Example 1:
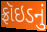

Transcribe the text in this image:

ફ્રૉઇડનું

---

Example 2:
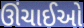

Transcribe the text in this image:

ઊંચાઈઓ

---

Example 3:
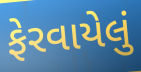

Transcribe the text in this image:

ફેરવાયેલું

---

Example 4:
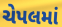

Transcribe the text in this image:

ચેપલમાં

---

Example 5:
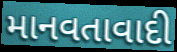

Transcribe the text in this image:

માનવતાવાદી